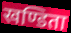
खण्डिता